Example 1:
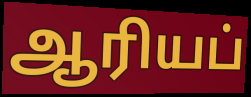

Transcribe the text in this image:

ஆரியப்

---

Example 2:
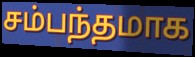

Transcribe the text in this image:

சம்பந்தமாக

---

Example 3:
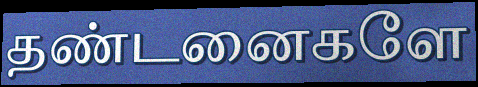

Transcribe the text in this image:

தண்டனைகளே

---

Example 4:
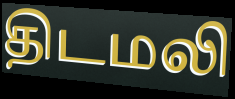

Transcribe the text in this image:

திடமலி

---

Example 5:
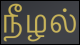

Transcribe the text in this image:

நீழல்